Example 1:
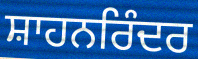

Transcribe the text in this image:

ਸ਼ਾਹਨਰਿੰਦਰ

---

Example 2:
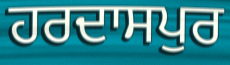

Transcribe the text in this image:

ਹਰਦਾਸਪੁਰ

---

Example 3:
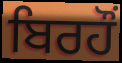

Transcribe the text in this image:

ਬਿਰਹੌਂ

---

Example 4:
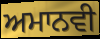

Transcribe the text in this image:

ਅਮਾਨਵੀ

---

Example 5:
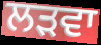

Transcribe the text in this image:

ਲੜਵਾ